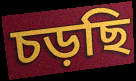
চড়ছি